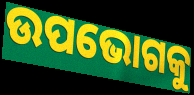
ଉପଭୋଗକୁ